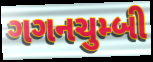
ગગનચુમ્બી